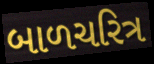
બાળચરિત્ર